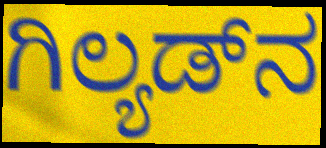
ಗಿಲ್ಯಡ್‌ನ